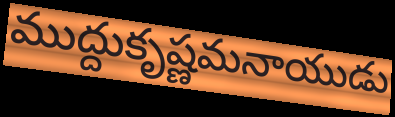
ముద్దుకృష్ణమనాయుడు